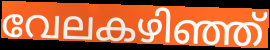
വേലകഴിഞ്ഞ്